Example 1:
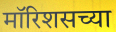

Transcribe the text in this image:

मॉरिशसच्या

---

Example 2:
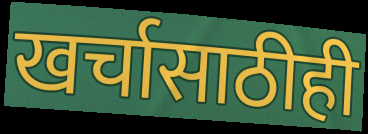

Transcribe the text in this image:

खर्चासाठीही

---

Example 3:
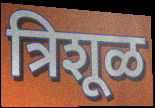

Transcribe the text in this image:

त्रिशूळ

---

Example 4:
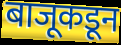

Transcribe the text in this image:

बाजूकडून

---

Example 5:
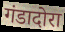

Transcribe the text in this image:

गंडादोरा